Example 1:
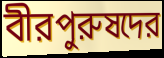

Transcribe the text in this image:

বীরপুরুষদের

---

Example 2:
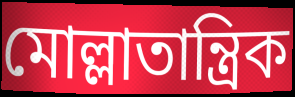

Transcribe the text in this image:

মোল্লাতান্ত্রিক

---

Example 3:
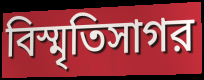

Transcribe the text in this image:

বিস্মৃতিসাগর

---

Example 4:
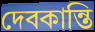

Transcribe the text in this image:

দেবকান্তি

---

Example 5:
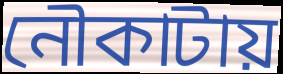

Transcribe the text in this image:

নৌকাটায়